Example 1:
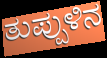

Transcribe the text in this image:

ತುಪ್ಪುಳಿನ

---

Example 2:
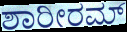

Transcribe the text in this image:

ಶಾರೀರಮ್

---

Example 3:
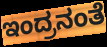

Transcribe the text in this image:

ಇಂದ್ರನಂತೆ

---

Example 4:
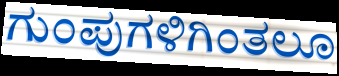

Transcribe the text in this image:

ಗುಂಪುಗಳಿಗಿಂತಲೂ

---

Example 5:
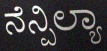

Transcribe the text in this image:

ನೆನ್ಪಿಲ್ಯಾ